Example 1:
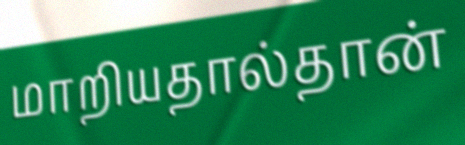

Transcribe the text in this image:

மாறியதால்தான்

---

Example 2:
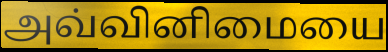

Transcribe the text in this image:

அவ்வினிமையை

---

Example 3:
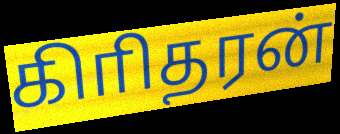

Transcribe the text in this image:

கிரிதரன்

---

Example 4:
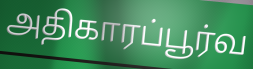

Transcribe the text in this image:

அதிகாரப்பூர்வ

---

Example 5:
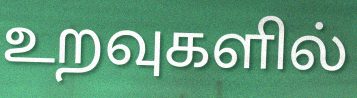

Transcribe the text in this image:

உறவுகளில்